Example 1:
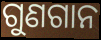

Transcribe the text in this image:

ଗୁଣଗାନ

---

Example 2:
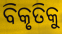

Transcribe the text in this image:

ବିକୃତିକୁ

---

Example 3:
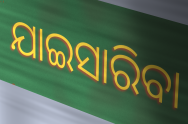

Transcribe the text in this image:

ଯାଇସାରିବା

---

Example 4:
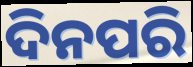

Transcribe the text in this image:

ଦିନପରି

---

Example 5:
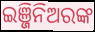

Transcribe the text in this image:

ଇଞ୍ଜିନିଅରଙ୍କ